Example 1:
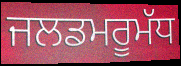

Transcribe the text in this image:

ਜਲਡਮਰੂਮੱਧ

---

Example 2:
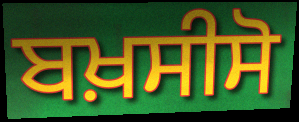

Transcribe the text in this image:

ਬਖ਼ਸੀਸੋ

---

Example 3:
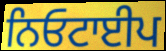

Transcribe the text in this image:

ਨਿਓਟਾਈਪ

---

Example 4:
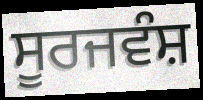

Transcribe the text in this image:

ਸੂਰਜਵੰਸ਼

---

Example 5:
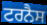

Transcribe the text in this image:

ਟਰਨੈਸ